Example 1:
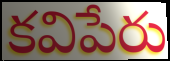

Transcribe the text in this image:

కవిపేరు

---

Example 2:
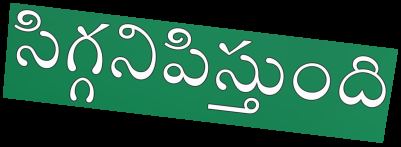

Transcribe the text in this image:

సిగ్గనిపిస్తుంది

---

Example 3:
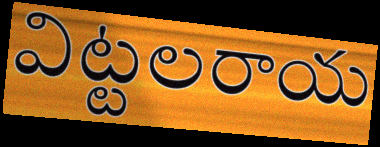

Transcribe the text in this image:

విట్టలరాయ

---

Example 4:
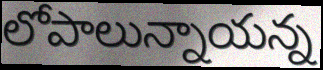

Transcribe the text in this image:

లోపాలున్నాయన్న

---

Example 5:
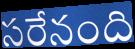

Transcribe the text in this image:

సరేనంది